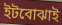
ইটবোঝাই